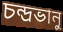
চন্দ্রভানু